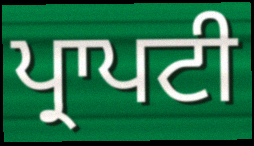
ਪ੍ਰਾਪਟੀ